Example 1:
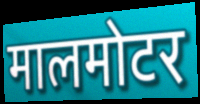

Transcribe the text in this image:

मालमोटर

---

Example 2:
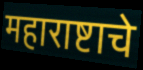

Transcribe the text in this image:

महाराष्टाचे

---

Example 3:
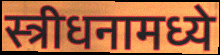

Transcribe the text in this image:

स्त्रीधनामध्ये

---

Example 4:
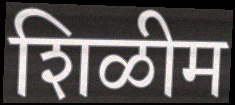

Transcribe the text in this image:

शिळीम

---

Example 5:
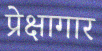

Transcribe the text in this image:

प्रेक्षागार